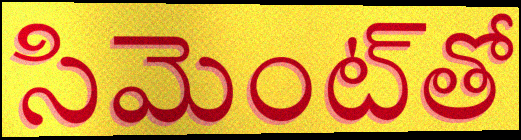
సిమెంట్‌తో